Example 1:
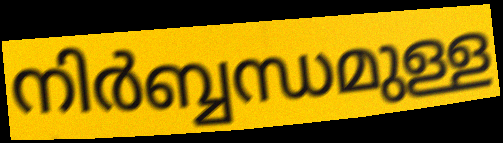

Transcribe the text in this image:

നിർബ്ബന്ധമുള്ള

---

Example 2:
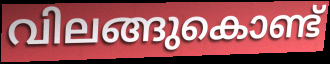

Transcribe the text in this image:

വിലങ്ങുകൊണ്ട്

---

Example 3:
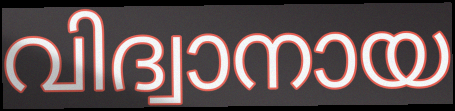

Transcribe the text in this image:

വിദ്വാനായ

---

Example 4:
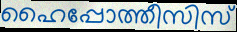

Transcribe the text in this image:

ഹൈപ്പോത്തീസിസ്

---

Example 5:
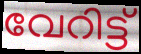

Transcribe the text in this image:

വേറിട്ട്